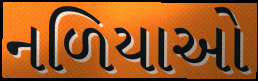
નળિયાઓ